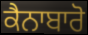
ਕੈਨਾਬਾਰੋ